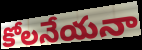
కోలనేయనా